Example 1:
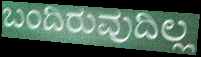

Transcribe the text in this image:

ಬಂದಿರುವುದಿಲ್ಲ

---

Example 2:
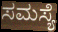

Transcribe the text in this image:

ಸಮಸ್ಯೆ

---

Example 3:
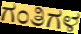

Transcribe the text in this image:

ಗಂತಿಗಳ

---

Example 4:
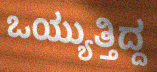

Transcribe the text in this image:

ಒಯ್ಯುತ್ತಿದ್ದ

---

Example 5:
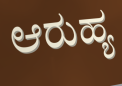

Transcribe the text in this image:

ಆರುಹ್ಯ